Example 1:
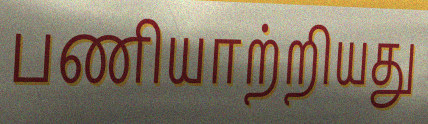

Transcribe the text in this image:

பணியாற்றியது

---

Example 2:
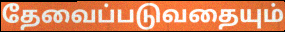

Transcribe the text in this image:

தேவைப்படுவதையும்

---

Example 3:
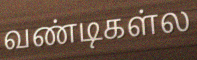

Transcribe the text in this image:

வண்டிகள்ல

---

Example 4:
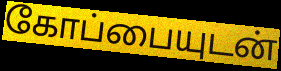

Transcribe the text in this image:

கோப்பையுடன்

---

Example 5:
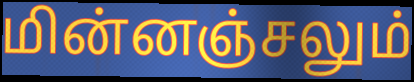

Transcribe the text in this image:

மின்னஞ்சலும்